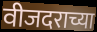
वीजदराच्या